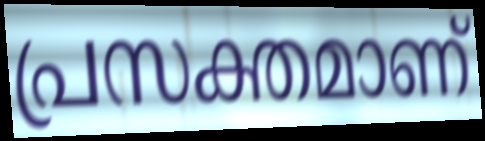
പ്രസക്തമാണ്